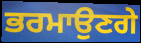
ਭਰਮਾਉਣਗੇ